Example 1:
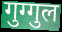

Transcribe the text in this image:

गुग्गुल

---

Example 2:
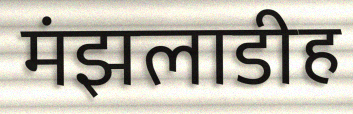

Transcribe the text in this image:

मंझलाडीह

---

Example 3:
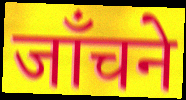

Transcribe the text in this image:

जाँचने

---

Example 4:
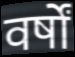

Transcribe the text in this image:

वर्षों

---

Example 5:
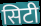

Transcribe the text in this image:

सिटी